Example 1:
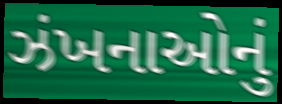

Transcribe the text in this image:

ઝંખનાઓનું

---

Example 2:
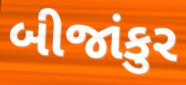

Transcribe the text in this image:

બીજાંકુર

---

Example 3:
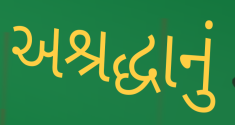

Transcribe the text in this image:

અશ્રદ્ધાનું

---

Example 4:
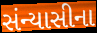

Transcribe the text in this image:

સંન્યાસીના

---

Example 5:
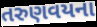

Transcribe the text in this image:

તરુણવયના